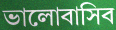
ভালোবাসিব